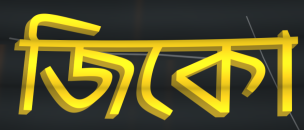
জিকো